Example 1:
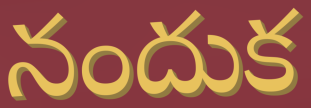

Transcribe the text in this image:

నందుక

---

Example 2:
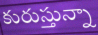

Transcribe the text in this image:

కురుస్తున్నా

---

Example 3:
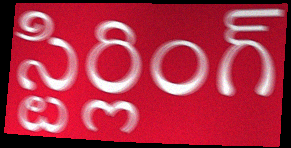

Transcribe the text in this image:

స్టిర్లింగ్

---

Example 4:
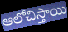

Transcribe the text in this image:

ఆలోచిస్తాయి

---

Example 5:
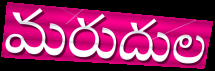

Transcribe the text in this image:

మరుదుల